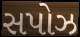
સપોઝ